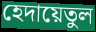
হেদায়েতুল